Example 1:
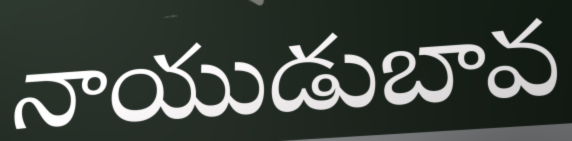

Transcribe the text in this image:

నాయుడుబావ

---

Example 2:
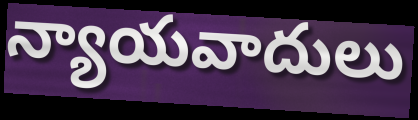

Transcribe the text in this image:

న్యాయవాదులు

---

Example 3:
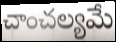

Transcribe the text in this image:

చాంచల్యమే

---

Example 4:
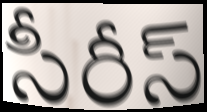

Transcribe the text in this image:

సీరీస్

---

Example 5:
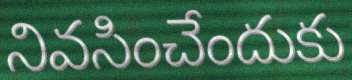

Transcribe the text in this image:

నివసించేందుకు